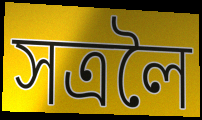
সত্ৰলৈ